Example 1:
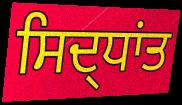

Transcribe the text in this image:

ਸਿਦ੍ਧਾਂਤ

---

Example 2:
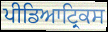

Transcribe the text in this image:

ਪੀਡਿਆਟ੍ਰਿਕਸ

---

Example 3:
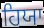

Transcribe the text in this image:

ਹਿਯਾ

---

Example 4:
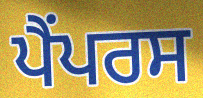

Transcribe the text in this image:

ਪੈਂਪਰਸ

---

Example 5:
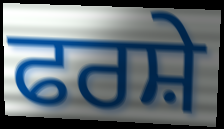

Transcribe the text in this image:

ਫਰਸ਼ੇ